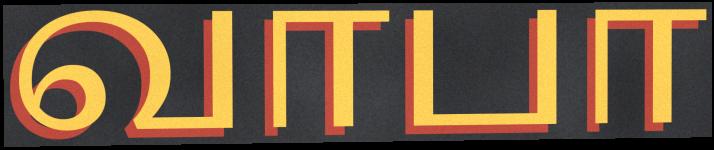
வாபா